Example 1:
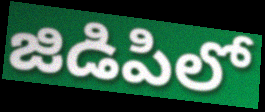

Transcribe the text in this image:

జిడిపిలో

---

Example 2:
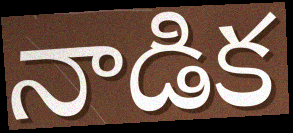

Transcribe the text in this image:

నాడిక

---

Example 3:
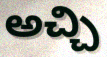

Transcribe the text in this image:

అచ్చి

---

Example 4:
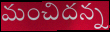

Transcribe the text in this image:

మంచిదన్న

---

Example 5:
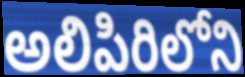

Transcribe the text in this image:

అలిపిరిలోని